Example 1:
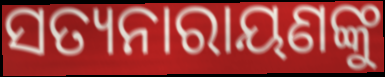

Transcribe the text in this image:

ସତ୍ୟନାରାୟଣଙ୍କୁ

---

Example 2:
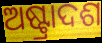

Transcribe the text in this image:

ଅଷ୍ଟ୍ରାଦଶ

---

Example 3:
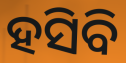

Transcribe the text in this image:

ହସିବି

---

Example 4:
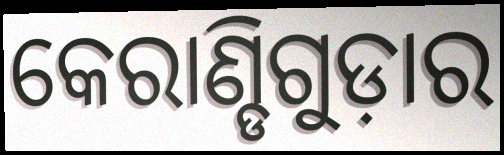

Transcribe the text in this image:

କେରାଣ୍ଡିଗୁଡ଼ାର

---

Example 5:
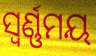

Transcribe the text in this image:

ସ୍ଵର୍ଣ୍ଣମୟ